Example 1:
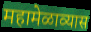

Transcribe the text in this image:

महामेळाव्यास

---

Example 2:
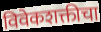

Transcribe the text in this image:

विवेकशक्तीचा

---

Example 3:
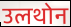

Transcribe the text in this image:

उलथोन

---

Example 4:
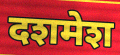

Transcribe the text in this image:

दशमेश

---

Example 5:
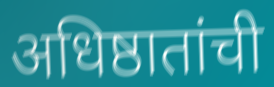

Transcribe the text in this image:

अधिष्ठातांची